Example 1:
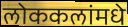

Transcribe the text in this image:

लोककलांमधे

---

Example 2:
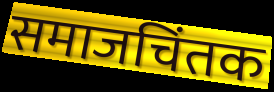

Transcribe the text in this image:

समाजचिंतक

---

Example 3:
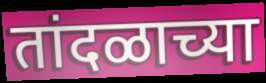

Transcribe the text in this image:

तांदळाच्या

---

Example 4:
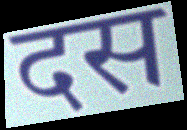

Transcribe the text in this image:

दस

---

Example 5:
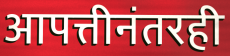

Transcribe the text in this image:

आपत्तीनंतरही